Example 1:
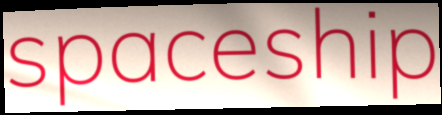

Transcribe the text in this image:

spaceship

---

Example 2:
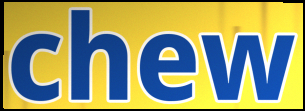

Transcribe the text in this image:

chew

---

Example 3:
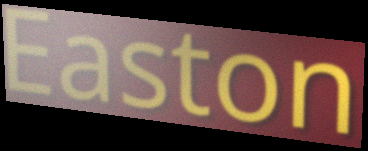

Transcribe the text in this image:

Easton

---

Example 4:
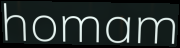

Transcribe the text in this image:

homam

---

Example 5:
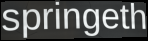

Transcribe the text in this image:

springeth